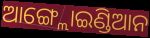
ଆଙ୍ଗ୍ଲୋଇଣ୍ଡିଆନ